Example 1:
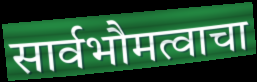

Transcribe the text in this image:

सार्वभौमत्वाचा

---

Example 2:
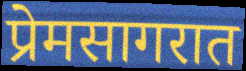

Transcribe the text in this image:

प्रेमसागरात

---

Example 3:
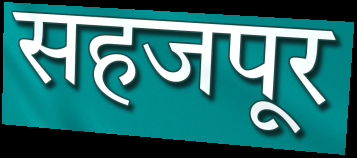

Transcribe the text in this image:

सहजपूर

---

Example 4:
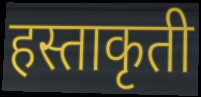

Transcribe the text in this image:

हस्ताकृती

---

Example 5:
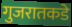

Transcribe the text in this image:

गुजरातकडे